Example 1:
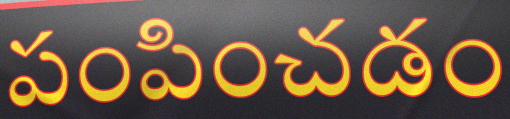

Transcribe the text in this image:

పంపించడం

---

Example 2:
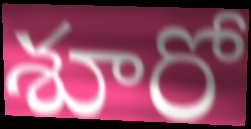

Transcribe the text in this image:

శూరో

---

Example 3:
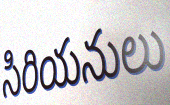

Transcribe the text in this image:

సిరియనులు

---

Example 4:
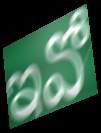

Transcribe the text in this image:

ఇవో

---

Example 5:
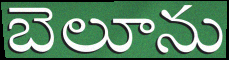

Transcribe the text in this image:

బెలూను